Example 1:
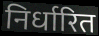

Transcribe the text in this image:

निर्धारित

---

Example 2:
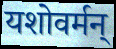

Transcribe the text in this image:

यशोवर्मन्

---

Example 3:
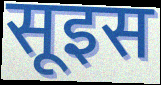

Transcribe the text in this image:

सूइस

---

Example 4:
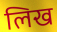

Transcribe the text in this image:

लिख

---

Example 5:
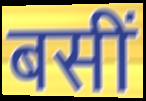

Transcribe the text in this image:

बसीं